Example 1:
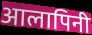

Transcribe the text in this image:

आलापिनी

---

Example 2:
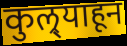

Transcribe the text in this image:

कुल्र्याहून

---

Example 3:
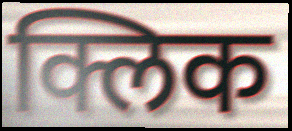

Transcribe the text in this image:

क्लिक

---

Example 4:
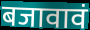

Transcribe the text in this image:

बजावावं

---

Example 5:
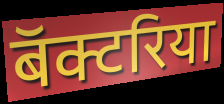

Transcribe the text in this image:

बॅक्टरिया